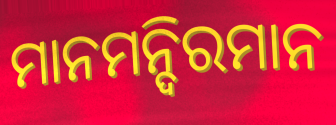
ମାନମନ୍ଦିରମାନ